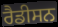
ਰੈਡੀਸਨ